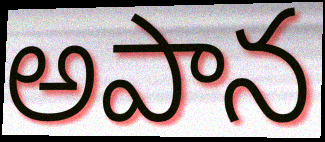
అపాన